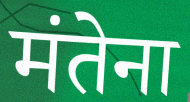
मंतेना